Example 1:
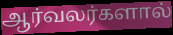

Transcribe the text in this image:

ஆர்வலர்களால்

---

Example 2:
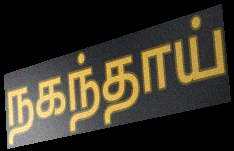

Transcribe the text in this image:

நகந்தாய்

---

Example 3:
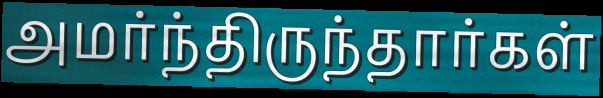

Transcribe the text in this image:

அமர்ந்திருந்தார்கள்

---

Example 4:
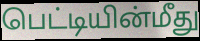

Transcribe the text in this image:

பெட்டியின்மீது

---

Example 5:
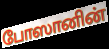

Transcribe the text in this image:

போஸானின்